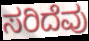
ಸರಿದೆವು